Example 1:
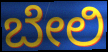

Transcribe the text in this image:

ಬೇಲಿ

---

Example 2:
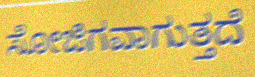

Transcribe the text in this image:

ಸೋಜಿಗವಾಗುತ್ತದೆ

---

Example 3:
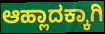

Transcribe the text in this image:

ಆಹ್ಲಾದಕ್ಕಾಗಿ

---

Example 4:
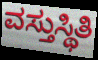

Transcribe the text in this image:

ವಸ್ತುಸ್ಥಿತಿ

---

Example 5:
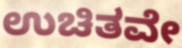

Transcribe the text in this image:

ಉಚಿತವೇ